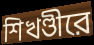
শিখণ্ডীরে